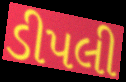
ડીપલી